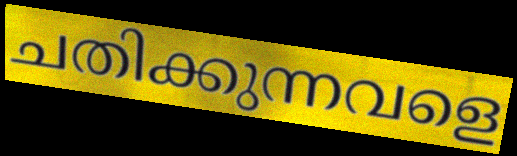
ചതിക്കുന്നവളെ